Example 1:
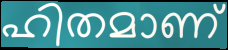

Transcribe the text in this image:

ഹിതമാണ്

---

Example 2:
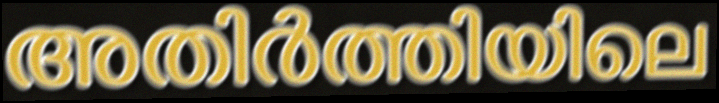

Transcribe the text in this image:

അതിർത്തിയിലെ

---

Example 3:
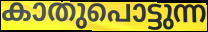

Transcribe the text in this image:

കാതുപൊട്ടുന്ന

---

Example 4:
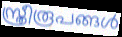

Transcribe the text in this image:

സ്ത്രീരൂപങ്ങൾ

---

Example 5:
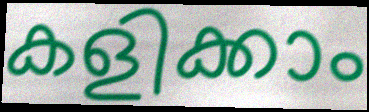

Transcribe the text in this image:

കളിക്കാം